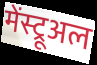
मेंस्ट्रूअल